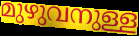
മുഴുവനുള്ള